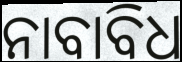
ନାବାବିଧ